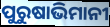
ପୁରୁଷାଭିମାନୀ